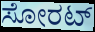
ಸೋರಟ್